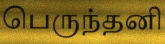
பெருந்தனி